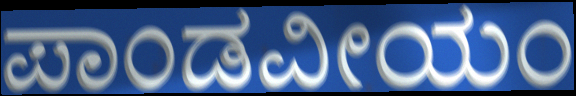
ಪಾಂಡವೀಯಂ